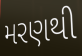
મરણથી